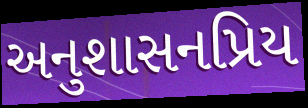
અનુશાસનપ્રિય